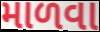
માળવા